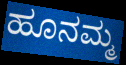
ಹೂನಮ್ಮ